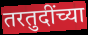
तरतुदींच्या